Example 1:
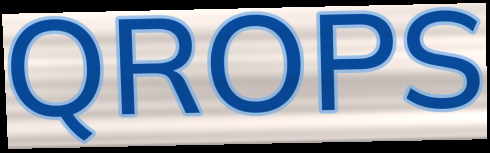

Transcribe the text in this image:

QROPS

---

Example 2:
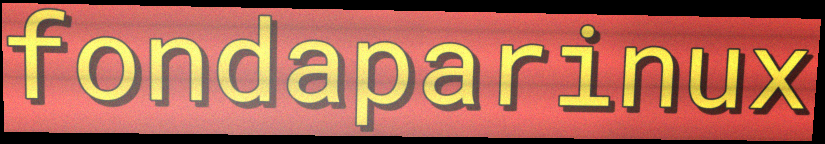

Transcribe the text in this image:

fondaparinux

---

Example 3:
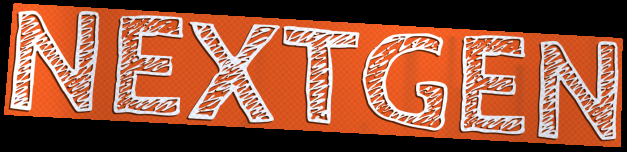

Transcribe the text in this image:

NEXTGEN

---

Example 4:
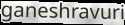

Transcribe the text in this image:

ganeshravuri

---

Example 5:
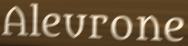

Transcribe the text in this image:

Aleurone